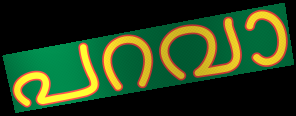
പറവാ